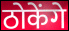
ठोकेंगे